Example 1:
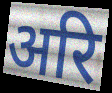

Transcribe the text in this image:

अरि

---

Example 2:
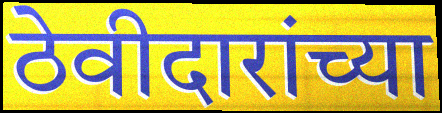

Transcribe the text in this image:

ठेवीदारांच्या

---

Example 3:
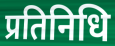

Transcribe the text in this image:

प्रतिनिधि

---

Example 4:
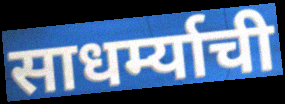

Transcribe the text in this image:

साधर्म्याची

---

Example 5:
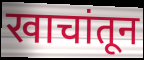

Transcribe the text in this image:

खाचांतून